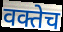
वक्तेच